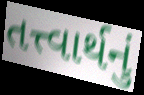
તત્ત્વાર્થનું